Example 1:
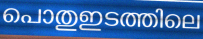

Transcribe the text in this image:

പൊതുഇടത്തിലെ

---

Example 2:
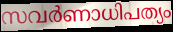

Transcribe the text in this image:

സവർണാധിപത്യം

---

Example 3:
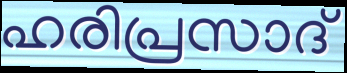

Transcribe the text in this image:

ഹരിപ്രസാദ്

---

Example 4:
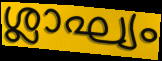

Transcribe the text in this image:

ശ്ലാഘ്യം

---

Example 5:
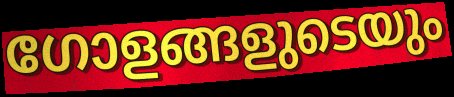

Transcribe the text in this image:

ഗോളങ്ങളുടെയും